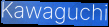
Kawaguchi